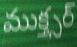
ముక్త్సర్